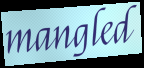
mangled